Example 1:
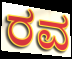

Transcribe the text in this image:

ರವ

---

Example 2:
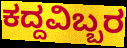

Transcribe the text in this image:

ಕದ್ದವಿಬ್ಬರ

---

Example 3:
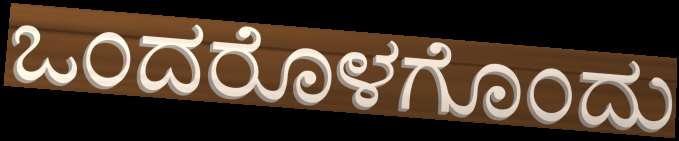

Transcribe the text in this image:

ಒಂದರೊಳಗೊಂದು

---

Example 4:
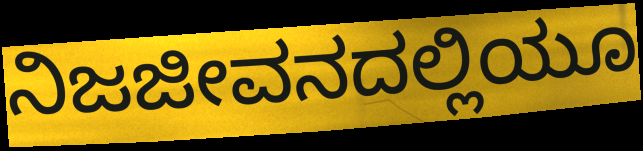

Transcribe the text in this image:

ನಿಜಜೀವನದಲ್ಲಿಯೂ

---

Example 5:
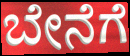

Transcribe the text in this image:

ಬೇನೆಗೆ